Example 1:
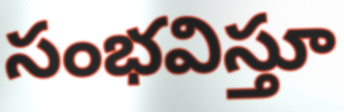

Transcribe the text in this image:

సంభవిస్తూ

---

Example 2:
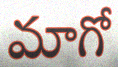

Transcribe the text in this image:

మాగో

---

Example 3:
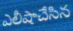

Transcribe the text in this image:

ఎలీషాచేసిన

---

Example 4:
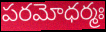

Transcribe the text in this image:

పరమోధర్మః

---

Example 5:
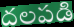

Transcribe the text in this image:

దలపడి